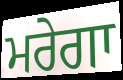
ਮਰੇਗਾ